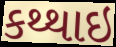
કથ્થાઇ